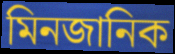
মিনজানিক